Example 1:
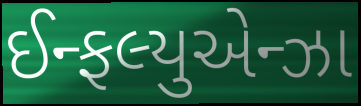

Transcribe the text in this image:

ઈન્ફલ્યુએન્ઝા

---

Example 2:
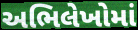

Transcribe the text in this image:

અભિલેખોમાં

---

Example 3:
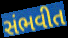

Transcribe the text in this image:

સંભવીત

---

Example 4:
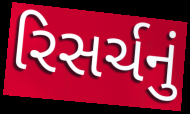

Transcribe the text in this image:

રિસર્ચનું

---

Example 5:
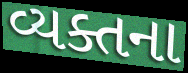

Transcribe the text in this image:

વ્યક્તના